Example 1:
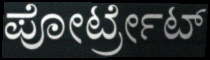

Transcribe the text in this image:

ಪೋರ್ಟ್ರೇಟ್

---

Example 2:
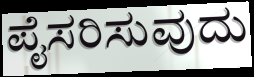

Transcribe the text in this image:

ಪೈಸರಿಸುವುದು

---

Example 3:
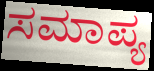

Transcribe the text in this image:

ಸಮಾಪ್ಯ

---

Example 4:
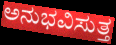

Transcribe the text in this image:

ಅನುಭವಿಸುತ್ತ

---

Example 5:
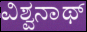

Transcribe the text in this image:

ವಿಶ್ವನಾಥ್